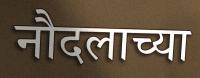
नौदलाच्या